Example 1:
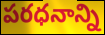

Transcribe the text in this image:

పరధనాన్ని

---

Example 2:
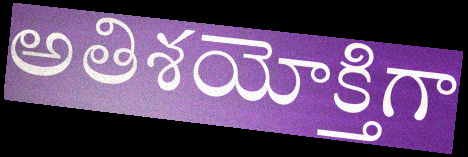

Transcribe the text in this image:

అతిశయోక్తిగా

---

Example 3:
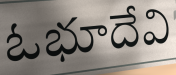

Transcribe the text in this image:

ఓభూదేవి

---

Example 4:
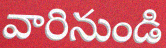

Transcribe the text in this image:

వారినుండి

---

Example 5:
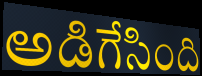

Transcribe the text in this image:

అడిగేసింది